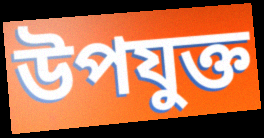
উপযুক্ত